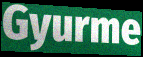
Gyurme